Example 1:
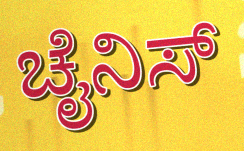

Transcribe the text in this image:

ಚೈನಿಸ್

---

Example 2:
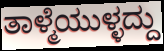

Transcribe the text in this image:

ತಾಳ್ಮೆಯುಳ್ಳದ್ದು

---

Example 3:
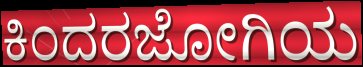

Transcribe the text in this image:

ಕಿಂದರಜೋಗಿಯ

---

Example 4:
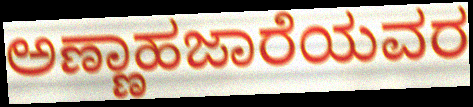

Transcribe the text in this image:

ಅಣ್ಣಾಹಜಾರೆಯವರ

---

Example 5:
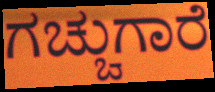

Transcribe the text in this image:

ಗಚ್ಚುಗಾರೆ